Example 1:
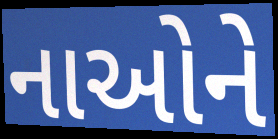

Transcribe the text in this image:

નાઓને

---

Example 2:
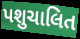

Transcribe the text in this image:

પશુચાલિત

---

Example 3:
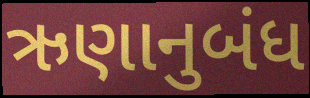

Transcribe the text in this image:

ઋણાનુબંધ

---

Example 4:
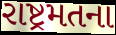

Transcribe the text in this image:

રાષ્ટ્રમતના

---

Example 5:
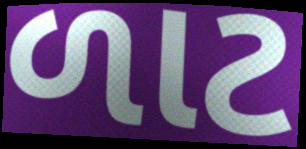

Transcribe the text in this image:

ળાટ